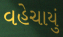
વહેચાયું